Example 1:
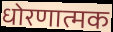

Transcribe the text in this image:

धोरणात्मक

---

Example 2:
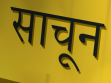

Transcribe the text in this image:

साचून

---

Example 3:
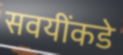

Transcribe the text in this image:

सवयींकडे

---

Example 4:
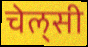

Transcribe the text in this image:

चेल्सी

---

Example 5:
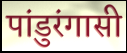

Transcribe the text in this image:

पांडुरंगासी